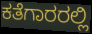
ಕತೆಗಾರರಲ್ಲಿ